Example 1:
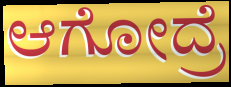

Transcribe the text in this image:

ಆಗೋದ್ರೆ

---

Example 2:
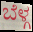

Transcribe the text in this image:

ಬೆಳ್ಗ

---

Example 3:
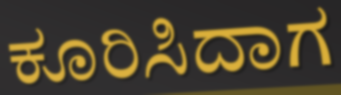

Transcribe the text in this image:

ಕೂರಿಸಿದಾಗ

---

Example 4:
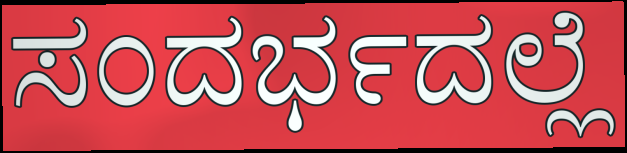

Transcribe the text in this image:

ಸಂದರ್ಭದಲ್ಲೆ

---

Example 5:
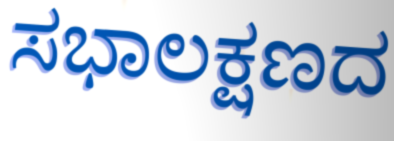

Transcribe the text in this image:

ಸಭಾಲಕ್ಷಣದ